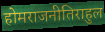
होमराजनीतिराहुल